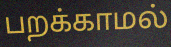
பறக்காமல்